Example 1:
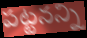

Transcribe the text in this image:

పట్టనన్ని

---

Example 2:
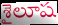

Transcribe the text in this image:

శైలూష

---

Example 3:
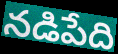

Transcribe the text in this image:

నడిపేది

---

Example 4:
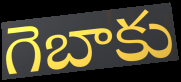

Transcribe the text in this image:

గెబాకు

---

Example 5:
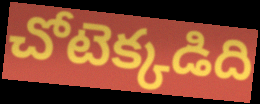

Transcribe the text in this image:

చోటెక్కడిది